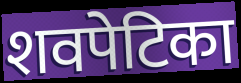
शवपेटिका